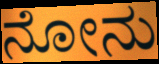
ನೋನು